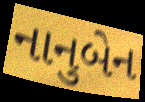
નાનુબેન